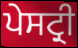
ਪੇਸਟ੍ਰੀ